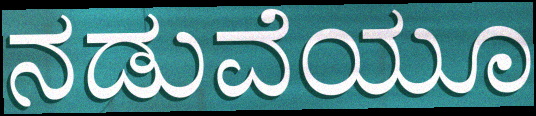
ನಡುವೆಯೂ